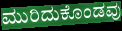
ಮುರಿದುಕೊಂಡವು